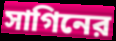
সাগিনের